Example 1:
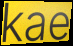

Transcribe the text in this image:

kae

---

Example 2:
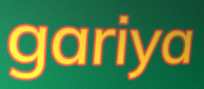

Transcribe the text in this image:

gariya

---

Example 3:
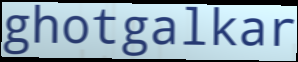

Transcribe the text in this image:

ghotgalkar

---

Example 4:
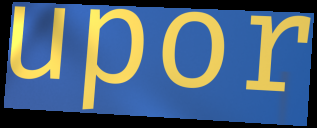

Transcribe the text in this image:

upor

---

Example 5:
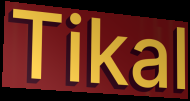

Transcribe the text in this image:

Tikal